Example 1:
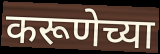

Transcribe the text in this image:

करूणेच्या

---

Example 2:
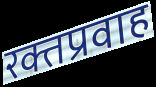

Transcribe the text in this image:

रक्तप्रवाह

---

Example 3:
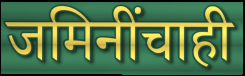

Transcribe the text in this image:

जमिनींचाही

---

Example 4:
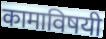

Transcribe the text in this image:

कामाविषयी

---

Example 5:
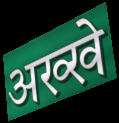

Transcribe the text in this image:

अख्खे